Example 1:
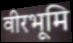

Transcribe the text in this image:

वीरभूमि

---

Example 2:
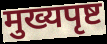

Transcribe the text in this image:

मुख्यपृष्ट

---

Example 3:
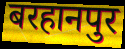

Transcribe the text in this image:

बरहानपुर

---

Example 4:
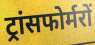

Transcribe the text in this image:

ट्रांसफोर्मरों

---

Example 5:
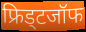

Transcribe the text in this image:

फ्रिड्टजॉफ